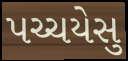
પચ્ચયેસુ